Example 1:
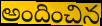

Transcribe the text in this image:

అందించిన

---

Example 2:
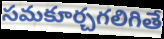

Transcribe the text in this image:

సమకూర్చగలిగితే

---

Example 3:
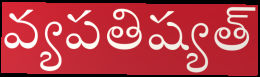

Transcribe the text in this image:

వ్యపతిష్యత్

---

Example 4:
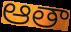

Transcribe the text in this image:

ఆతా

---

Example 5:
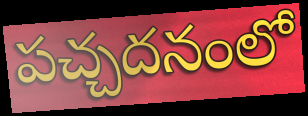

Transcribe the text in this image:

పచ్చదనంలో